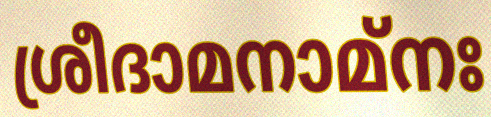
ശ്രീദാമനാമ്നഃ